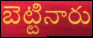
బెట్టినారు